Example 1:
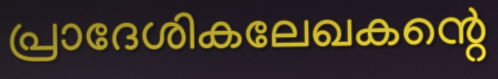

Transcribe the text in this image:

പ്രാദേശികലേഖകന്റെ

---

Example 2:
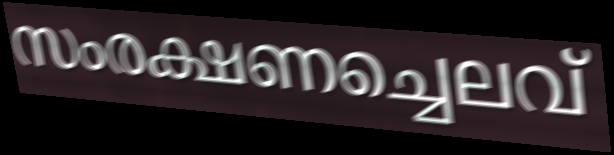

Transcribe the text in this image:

സംരക്ഷണച്ചെലവ്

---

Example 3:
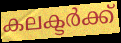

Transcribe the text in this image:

കലക്ടർക്ക്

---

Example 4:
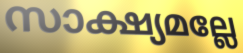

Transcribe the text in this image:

സാക്ഷ്യമല്ലേ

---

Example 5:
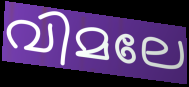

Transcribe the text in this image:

വിമലേ